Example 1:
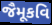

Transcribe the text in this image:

જૈમૂકવિ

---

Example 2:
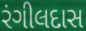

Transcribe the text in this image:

રંગીલદાસ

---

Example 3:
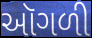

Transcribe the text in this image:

ઑગળી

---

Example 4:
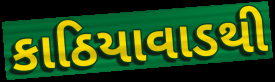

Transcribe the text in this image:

કાઠિયાવાડથી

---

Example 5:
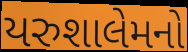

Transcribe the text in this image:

યરુશાલેમનો